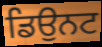
ਡਿਉਨਟ